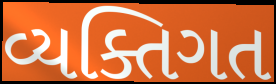
વ્યક્તિગત